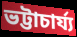
ভট্টাচার্য্য